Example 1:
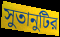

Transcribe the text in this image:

সুতানুটির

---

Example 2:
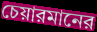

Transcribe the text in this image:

চেয়ারমানের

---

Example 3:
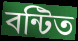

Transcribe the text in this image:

বন্টিত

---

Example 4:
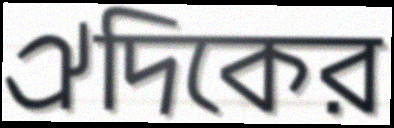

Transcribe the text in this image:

ঐদিকের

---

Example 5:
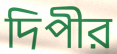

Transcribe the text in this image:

দিপীর